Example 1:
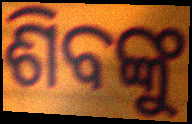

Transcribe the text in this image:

ଶିବଙ୍କୁ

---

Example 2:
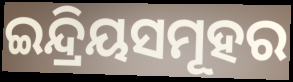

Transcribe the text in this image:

ଇନ୍ଦ୍ରିୟସମୂହର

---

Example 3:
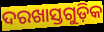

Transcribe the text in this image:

ଦରଖାସ୍ତଗୁଡ଼ିକ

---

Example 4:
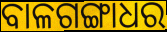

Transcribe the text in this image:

ବାଳଗଙ୍ଗାଧର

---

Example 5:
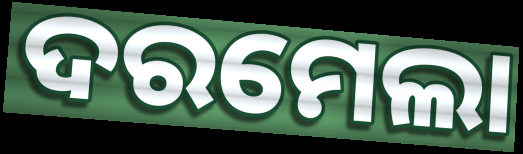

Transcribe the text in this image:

ଦରମେଲା